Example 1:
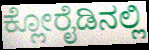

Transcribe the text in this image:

ಕ್ಲೋರೈಡಿನಲ್ಲಿ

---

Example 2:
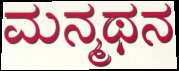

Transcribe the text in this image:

ಮನ್ಮಥನ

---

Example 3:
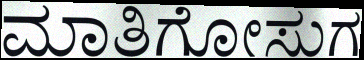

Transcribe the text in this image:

ಮಾತಿಗೋಸುಗ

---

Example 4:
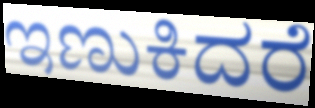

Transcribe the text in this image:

ಇಣುಕಿದರೆ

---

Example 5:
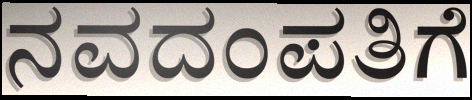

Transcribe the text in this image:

ನವದಂಪತಿಗೆ